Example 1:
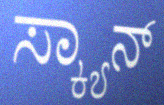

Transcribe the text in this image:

ಸ್ಕ್ಯಾನ್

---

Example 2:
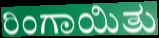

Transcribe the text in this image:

ರಿಂಗಾಯಿತು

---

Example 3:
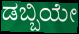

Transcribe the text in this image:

ಡಬ್ಬಿಯೇ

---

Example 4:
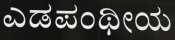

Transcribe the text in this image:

ಎಡಪಂಥೀಯ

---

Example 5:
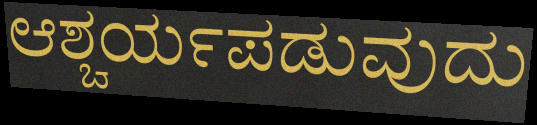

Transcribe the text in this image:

ಆಶ್ಚರ್ಯಪಡುವುದು